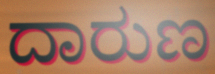
ದಾರುಣ